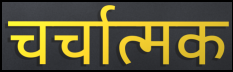
चर्चात्मक